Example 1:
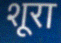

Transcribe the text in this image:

शूरा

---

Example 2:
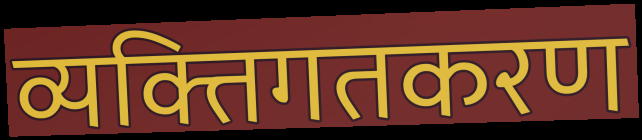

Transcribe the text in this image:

व्यक्तिगतकरण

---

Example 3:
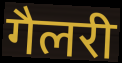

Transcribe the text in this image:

गैलरी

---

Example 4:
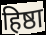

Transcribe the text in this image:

हिष्ठा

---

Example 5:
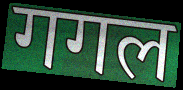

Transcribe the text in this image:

गगल